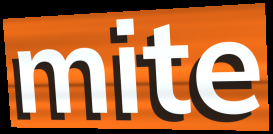
mite